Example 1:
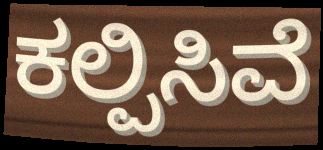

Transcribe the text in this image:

ಕಲ್ಪಿಸಿವೆ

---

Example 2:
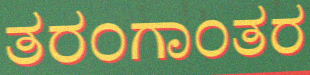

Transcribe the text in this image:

ತರಂಗಾಂತರ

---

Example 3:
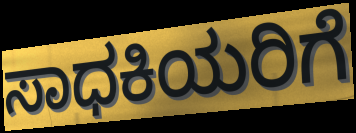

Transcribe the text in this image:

ಸಾಧಕಿಯರಿಗೆ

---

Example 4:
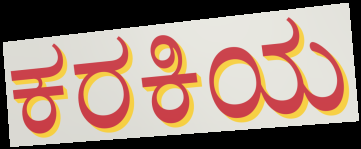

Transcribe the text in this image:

ಕರಕಿಯ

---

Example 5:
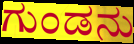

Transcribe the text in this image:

ಗುಂಡನು